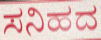
ಸನಿಹದ